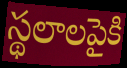
స్థలాలపైకి